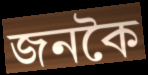
জনকৈ